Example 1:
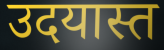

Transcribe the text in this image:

उदयास्त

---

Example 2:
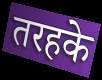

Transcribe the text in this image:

तरहके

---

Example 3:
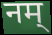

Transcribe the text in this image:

नम्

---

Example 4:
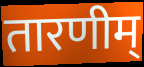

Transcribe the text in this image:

तारणीम्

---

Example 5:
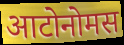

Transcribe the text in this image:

आटोनोमस